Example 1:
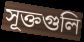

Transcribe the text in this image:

সূক্তগুলি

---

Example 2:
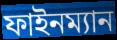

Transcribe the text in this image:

ফাইনম্যান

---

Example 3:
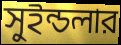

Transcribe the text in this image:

সুইন্ডলার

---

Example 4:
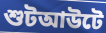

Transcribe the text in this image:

শুটআউটে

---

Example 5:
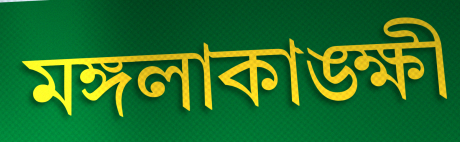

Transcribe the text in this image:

মঙ্গলাকাঙ্ক্ষী